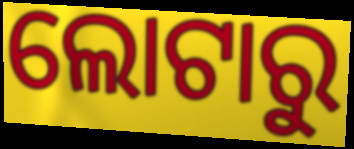
ଲୋଟାରୁ